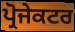
ਪ੍ਰੋਜੇਕਟਰ